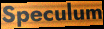
Speculum